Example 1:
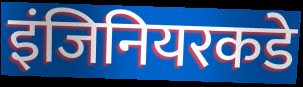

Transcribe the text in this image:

इंजिनियरकडे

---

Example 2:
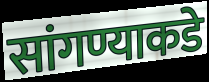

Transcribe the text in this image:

सांगण्याकडे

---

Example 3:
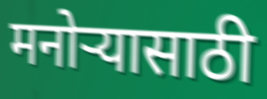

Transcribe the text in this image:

मनोऱ्यासाठी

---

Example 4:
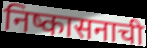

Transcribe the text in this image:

निष्कासनाची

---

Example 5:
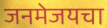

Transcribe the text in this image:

जनमेजयचा